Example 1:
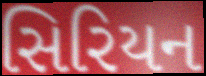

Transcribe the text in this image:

સિરિયન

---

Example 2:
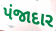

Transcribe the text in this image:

પંજાદાર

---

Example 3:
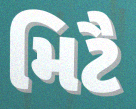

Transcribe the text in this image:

મિટૈ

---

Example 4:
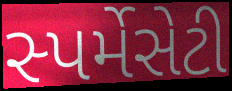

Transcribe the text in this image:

સ્પર્મેસેટી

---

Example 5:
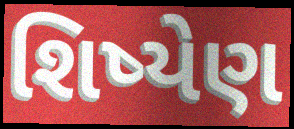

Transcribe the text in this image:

શિષ્યેણ